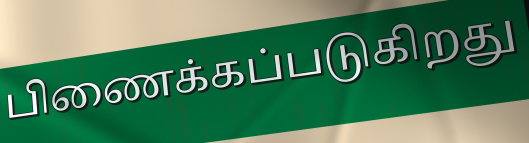
பிணைக்கப்படுகிறது